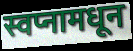
स्वप्नामधून